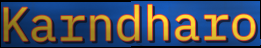
Karndharo